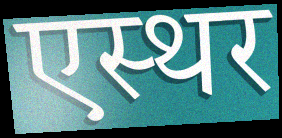
एस्थर